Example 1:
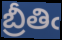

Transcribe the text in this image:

బ్రీతిఁ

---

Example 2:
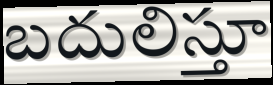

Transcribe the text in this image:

బదులిస్తూ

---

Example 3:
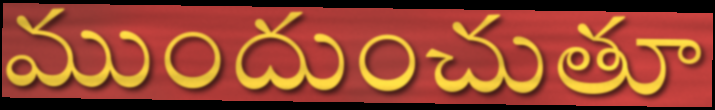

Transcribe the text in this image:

ముందుంచుతూ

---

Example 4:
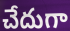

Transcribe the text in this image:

చేదుగా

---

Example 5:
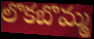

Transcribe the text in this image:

లొకబొమ్మ